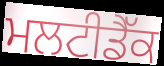
ਮਲਟੀਡੈੱਕ